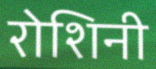
रोशिनी